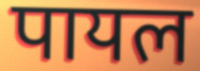
पायल